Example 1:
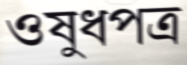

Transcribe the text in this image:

ওষুধপত্র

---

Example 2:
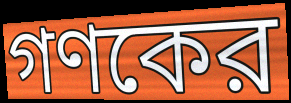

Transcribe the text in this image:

গণকের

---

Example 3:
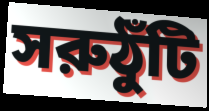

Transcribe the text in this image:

সরুঠুঁটি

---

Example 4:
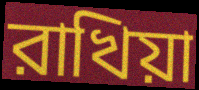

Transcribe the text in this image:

রাখিয়া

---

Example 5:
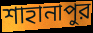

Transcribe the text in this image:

শাহানাপুর